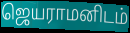
ஜெயராமனிடம்